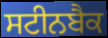
ਸਟੀਨਬੈਕ